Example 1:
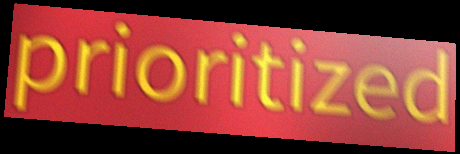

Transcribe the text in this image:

prioritized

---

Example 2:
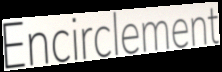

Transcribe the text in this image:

Encirclement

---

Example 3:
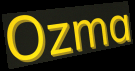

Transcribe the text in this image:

Ozma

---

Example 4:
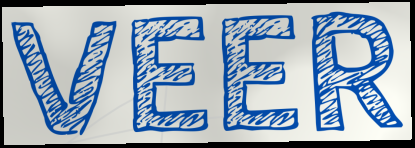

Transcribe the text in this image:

VEER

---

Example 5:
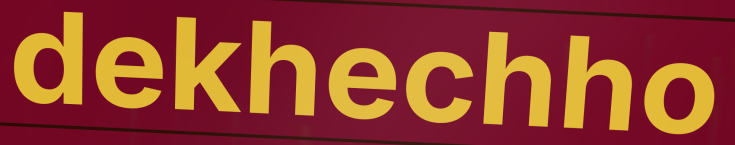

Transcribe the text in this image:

dekhechho